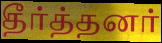
தீர்த்தனர்